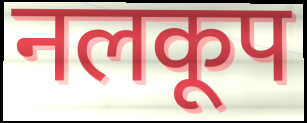
नलकूप